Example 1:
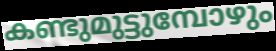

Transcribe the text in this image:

കണ്ടുമുട്ടുമ്പോഴും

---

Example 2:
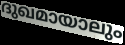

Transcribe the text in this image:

ദുഖമായാലും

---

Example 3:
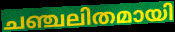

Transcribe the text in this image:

ചഞ്ചലിതമായി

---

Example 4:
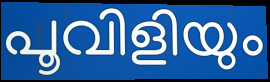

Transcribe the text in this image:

പൂവിളിയും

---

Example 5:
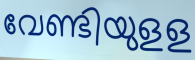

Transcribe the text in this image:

വേണ്ടിയുളള